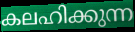
കലഹിക്കുന്ന